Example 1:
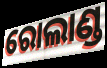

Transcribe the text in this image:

ରୋଲାଣ୍ଡ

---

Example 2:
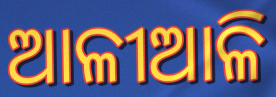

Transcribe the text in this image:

ଆଳୀଆଳି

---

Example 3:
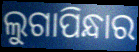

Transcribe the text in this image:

ଲୁଗାପିନ୍ଧାର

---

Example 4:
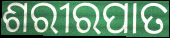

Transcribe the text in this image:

ଶରୀରପାତ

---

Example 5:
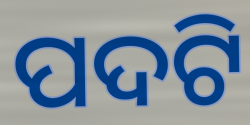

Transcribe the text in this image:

ପଦଟି